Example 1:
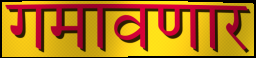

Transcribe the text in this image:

गमावणार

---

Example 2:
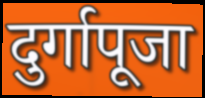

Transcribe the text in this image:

दुर्गापूजा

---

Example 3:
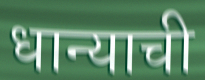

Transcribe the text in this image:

धान्याची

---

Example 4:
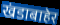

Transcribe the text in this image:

खंडाबाहेर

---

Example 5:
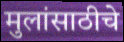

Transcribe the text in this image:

मुलांसाठीचे